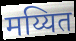
मय्यित